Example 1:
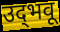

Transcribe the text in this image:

उद्‌भवू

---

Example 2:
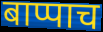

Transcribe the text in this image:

बाप्पाच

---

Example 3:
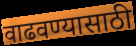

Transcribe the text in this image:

वाढवण्यासाठी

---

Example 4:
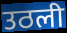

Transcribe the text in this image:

उठली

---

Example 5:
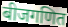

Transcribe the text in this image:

बीजगणित